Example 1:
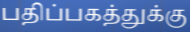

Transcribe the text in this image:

பதிப்பகத்துக்கு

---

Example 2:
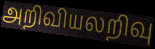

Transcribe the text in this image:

அறிவியலறிவு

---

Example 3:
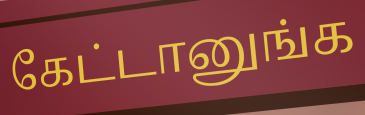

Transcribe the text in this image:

கேட்டானுங்க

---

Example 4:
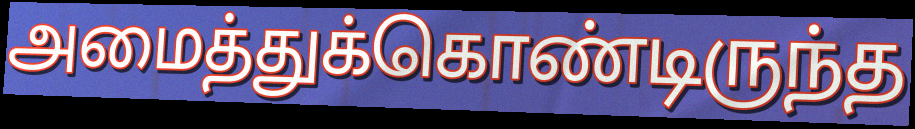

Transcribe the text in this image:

அமைத்துக்கொண்டிருந்த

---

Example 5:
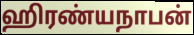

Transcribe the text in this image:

ஹிரண்யநாபன்